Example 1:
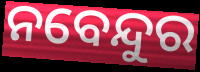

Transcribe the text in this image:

ନବେନ୍ଦୁର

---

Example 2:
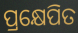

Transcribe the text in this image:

ପ୍ରକ୍ଷେପିତ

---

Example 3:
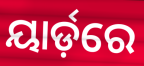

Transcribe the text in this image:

ୟାର୍ଡ଼ରେ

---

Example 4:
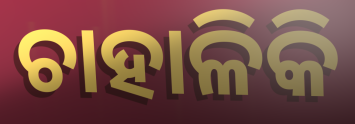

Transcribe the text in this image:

ଚାହାଳିକି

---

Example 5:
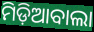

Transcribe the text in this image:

ମିଡ଼ିଆବାଲା